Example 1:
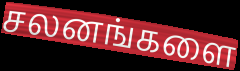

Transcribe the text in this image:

சலனங்களை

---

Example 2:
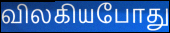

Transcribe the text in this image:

விலகியபோது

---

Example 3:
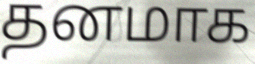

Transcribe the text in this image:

தனமாக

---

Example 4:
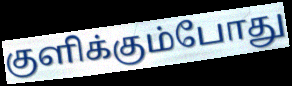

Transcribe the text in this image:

குளிக்கும்போது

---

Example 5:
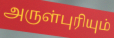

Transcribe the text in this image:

அருள்புரியும்